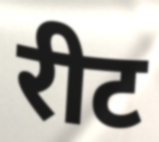
रीट